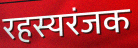
रहस्यरंजक